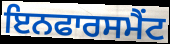
ਇਨਫਾਰਸਮੈਂਟ